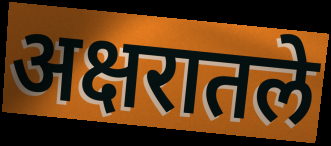
अक्षरातले